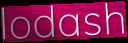
lodash